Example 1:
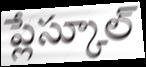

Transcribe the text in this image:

ప్లేస్కూల్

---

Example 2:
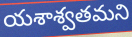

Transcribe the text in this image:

యశాశ్వతమని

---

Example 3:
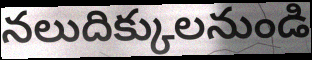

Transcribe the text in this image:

నలుదిక్కులనుండి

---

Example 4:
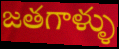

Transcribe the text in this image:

జతగాళ్ళు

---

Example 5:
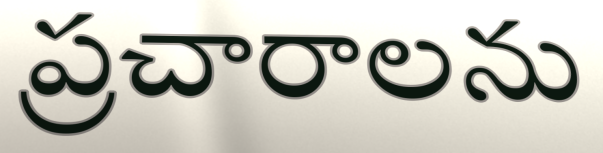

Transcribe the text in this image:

ప్రచారాలను